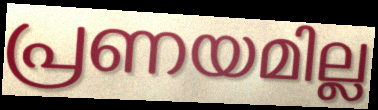
പ്രണയമില്ല